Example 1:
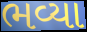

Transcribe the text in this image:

ભવ્યા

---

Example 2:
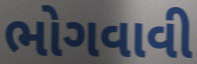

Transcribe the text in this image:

ભોગવાવી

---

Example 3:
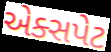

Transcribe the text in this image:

એક્સપેટ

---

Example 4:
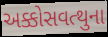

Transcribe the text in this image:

અક્કોસવત્થુના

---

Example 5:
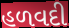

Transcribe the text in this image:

હળવદી